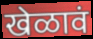
खेळावं